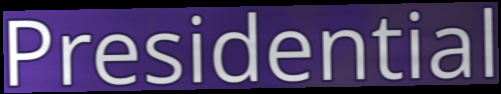
Presidential